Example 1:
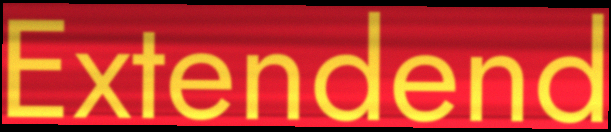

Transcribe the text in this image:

Extendend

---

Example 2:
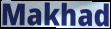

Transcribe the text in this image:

Makhad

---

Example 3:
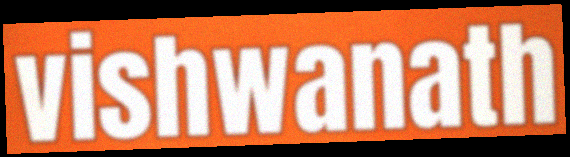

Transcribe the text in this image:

vishwanath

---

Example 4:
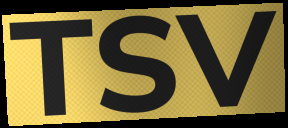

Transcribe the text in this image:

TSV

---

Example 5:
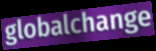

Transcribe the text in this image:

globalchange